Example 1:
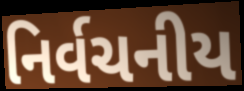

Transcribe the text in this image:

નિર્વચનીય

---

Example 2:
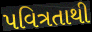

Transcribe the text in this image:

પવિત્રતાથી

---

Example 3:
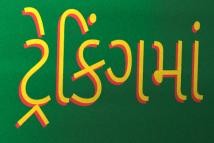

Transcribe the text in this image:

ટ્રેકિંગમાં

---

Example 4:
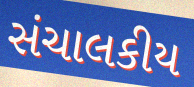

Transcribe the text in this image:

સંચાલકીય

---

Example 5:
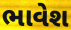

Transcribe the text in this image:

ભાવેશ